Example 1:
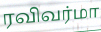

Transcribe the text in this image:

ரவிவர்மா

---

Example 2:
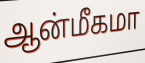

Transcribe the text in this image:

ஆன்மீகமா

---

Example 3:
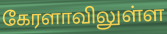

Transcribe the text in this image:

கேரளாவிலுள்ள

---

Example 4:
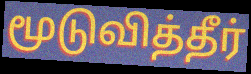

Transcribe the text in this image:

மூடுவித்தீர்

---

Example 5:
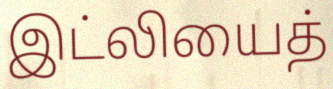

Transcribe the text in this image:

இட்லியைத்